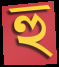
হু